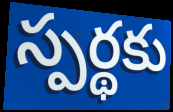
స్పర్థకు